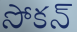
సోకన్